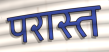
परास्त